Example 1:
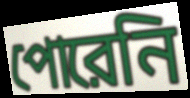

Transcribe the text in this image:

পোরেনি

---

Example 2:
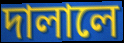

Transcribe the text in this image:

দালালে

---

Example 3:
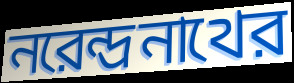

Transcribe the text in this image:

নরেন্দ্রনাথের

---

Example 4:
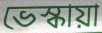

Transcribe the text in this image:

ভেস্কায়া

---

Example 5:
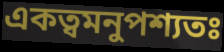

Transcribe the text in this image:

একত্বমনুপশ্যতঃ